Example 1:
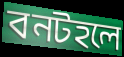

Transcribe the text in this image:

বনটহলে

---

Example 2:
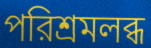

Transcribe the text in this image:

পরিশ্রমলব্ধ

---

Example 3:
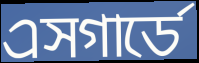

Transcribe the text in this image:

এসগার্ডে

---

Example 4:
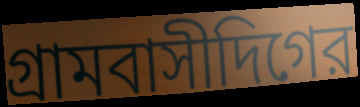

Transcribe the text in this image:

গ্রামবাসীদিগের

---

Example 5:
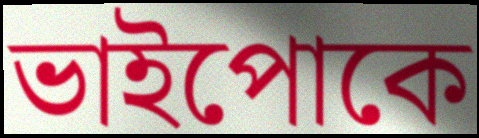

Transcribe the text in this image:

ভাইপোকে